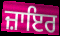
ਜ਼ਾਇਰ